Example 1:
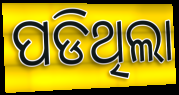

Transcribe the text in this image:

ପଡିଥିଲା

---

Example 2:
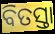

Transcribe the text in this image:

ବିତସ୍ତା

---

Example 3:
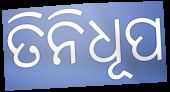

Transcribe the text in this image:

ତିନିଧୂପ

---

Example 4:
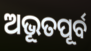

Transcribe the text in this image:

ଅଭୂତପୂର୍ବ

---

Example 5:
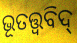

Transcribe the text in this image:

ଭୂତତ୍ତ୍ବବିଦ୍